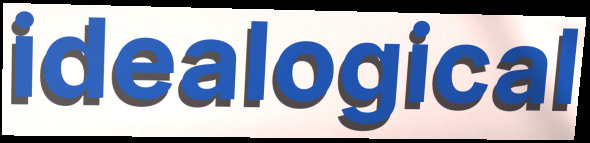
idealogical